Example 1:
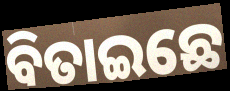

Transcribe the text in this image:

ବିତାଇଛେ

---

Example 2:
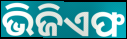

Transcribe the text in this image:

ଭିଜିଏଫ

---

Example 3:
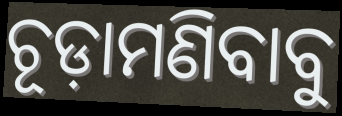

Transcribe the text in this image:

ଚୂଡ଼ାମଣିବାବୁ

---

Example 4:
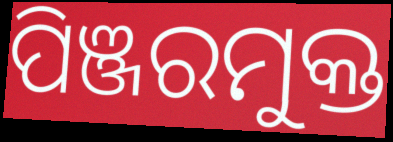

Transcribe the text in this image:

ପିଞ୍ଜରମୁକ୍ତ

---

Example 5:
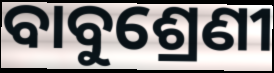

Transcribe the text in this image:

ବାବୁଶ୍ରେଣୀ